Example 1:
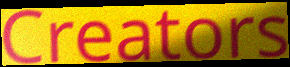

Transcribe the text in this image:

Creators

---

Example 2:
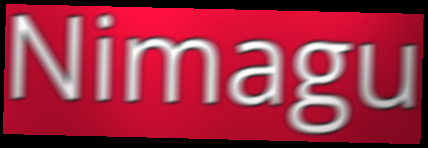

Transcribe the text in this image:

Nimagu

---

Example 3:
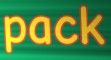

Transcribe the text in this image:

pack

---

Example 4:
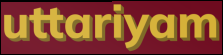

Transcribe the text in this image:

uttariyam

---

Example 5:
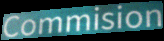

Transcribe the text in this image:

Commision